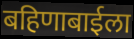
बहिणाबाईला